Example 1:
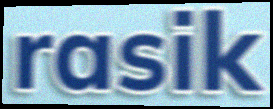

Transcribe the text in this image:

rasik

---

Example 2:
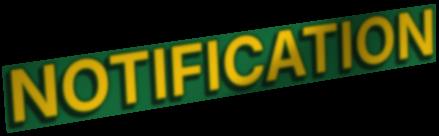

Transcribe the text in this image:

NOTIFICATION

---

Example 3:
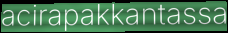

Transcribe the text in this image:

acirapakkantassa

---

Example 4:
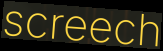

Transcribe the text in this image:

screech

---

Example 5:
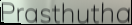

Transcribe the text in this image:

Prasthutha